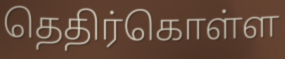
தெதிர்கொள்ள